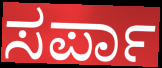
ಸರ್ಪಾ